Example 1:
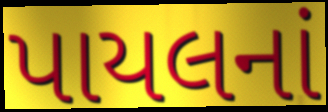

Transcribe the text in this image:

પાયલનાં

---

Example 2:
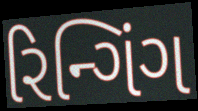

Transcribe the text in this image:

રિન્ગિંગ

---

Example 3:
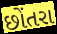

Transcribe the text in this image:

છોંતરા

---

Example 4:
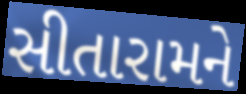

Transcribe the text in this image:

સીતારામને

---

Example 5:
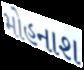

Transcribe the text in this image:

મોહનાશ